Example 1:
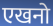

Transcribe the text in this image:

एखनो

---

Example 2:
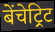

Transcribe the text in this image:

बेंचेट्रिट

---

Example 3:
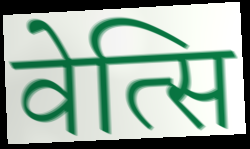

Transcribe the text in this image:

वेत्सि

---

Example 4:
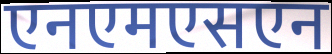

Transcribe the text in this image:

एनएमएसएन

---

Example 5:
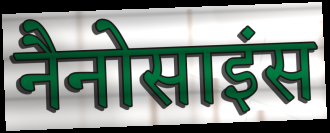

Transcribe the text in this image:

नैनोसाइंस